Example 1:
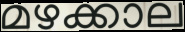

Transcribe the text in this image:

മഴക്കാല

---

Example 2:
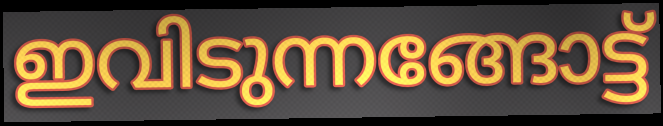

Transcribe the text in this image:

ഇവിടുന്നങ്ങോട്ട്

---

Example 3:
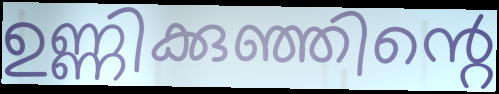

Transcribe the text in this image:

ഉണ്ണിക്കുഞ്ഞിന്റെ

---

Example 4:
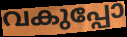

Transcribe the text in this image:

വകുപ്പോ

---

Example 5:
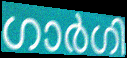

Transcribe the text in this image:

ഗാർഗി